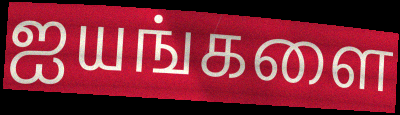
ஐயங்களை